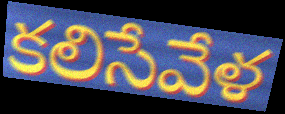
కలిసేవేళ